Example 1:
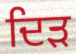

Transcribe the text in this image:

ਦਿੜ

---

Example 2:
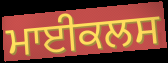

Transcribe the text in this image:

ਮਾਈਕਲਸ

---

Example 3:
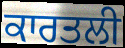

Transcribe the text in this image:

ਕਾਰਤਲੀ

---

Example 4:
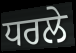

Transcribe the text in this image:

ਧਰਲੇ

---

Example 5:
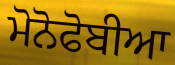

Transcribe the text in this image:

ਮੋਨੋਫੋਬੀਆ